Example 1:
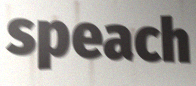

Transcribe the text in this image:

speach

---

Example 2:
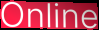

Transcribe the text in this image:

Online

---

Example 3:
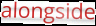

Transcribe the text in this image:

alongside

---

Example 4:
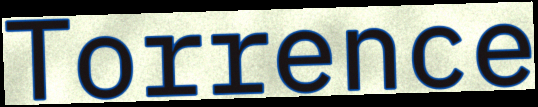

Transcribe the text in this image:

Torrence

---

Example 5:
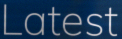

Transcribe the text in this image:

Latest